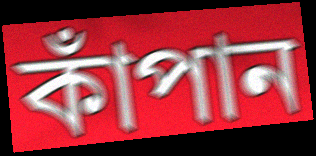
কাঁপান